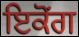
ਇਕੋਂਗ